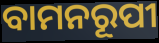
ବାମନରୂପୀ